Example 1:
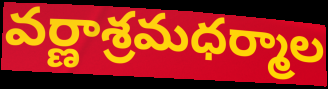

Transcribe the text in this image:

వర్ణాశ్రమధర్మాల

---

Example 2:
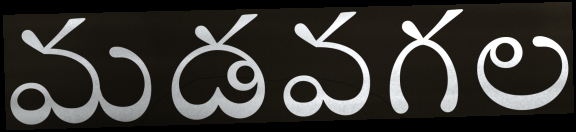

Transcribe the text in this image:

మడవగల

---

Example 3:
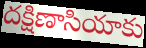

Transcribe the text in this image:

దక్షిణాసియాకు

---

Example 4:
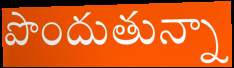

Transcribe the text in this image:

పొందుతున్నా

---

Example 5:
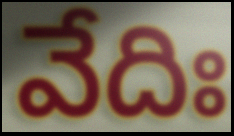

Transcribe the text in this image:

వేదిః